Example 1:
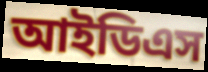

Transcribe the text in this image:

আইডিএস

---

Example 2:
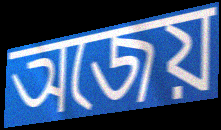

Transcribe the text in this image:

অজেয়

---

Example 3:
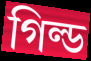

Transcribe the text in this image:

গিল্ড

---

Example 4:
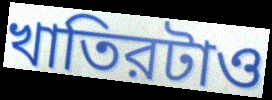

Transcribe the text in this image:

খাতিরটাও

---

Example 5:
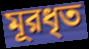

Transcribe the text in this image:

মূরধৃত